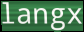
langx